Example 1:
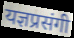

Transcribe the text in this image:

यज्ञप्रसंगी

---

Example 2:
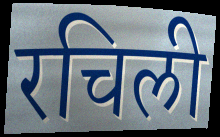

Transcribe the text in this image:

रचिली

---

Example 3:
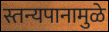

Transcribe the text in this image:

स्तन्यपानामुळे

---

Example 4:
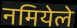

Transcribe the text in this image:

नमियेले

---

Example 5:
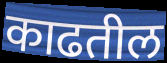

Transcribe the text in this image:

काढतील